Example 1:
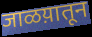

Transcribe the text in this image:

जाळय़ातून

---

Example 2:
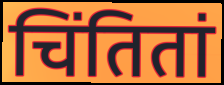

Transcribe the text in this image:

चिंतितां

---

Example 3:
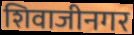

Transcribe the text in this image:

शिवाजीनगर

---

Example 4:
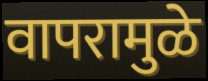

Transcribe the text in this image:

वापरामुळे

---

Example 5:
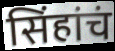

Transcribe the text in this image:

सिंहांचं